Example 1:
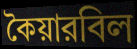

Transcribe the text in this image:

কৈয়ারবিল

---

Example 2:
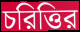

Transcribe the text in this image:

চরিত্তির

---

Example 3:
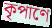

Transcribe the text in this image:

কৃপাণে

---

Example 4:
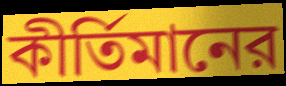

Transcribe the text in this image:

কীর্তিমানের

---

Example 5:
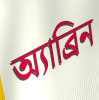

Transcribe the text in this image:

অ্যাব্রিন